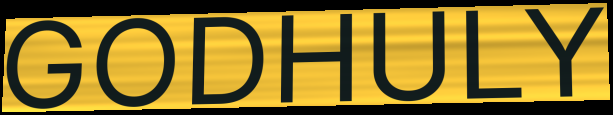
GODHULY